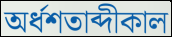
অর্ধশতাব্দীকাল